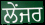
ਲੇਂਜਰ